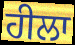
ਹੀਲਾ